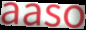
aaso